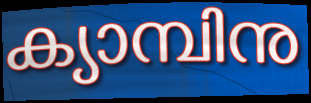
ക്യാമ്പിനു